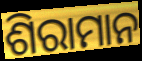
ଶିରାମାନ